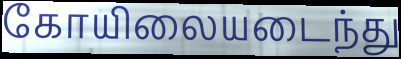
கோயிலையடைந்து